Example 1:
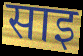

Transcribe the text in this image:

साइ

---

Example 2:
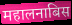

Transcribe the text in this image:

महालनाबिस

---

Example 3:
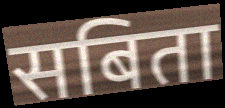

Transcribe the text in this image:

सबिता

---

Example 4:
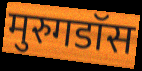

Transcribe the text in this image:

मुरुगडॉस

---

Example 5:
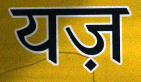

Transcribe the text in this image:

यज़